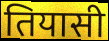
तियासी